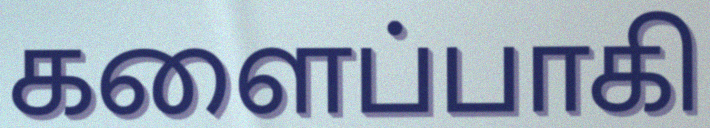
களைப்பாகி